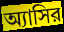
অ্যাসির